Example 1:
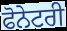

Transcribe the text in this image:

ਫੋਨੇਟਰੀ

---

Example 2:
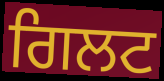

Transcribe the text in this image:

ਗਿਲਟ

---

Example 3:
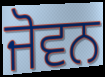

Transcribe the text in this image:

ਜੋਵਨ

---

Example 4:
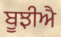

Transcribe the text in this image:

ਬੂਝੀਐ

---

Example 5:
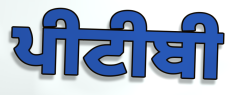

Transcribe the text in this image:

ਪੀਟੀਬੀ